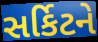
સર્કિટને